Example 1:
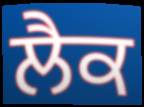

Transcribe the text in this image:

ਲੈਕ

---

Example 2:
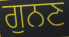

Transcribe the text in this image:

ਗੁਨਣ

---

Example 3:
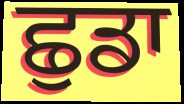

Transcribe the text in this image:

ਛੁਡਾ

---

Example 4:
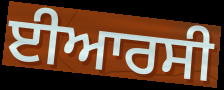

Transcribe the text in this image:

ਈਆਰਸੀ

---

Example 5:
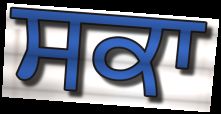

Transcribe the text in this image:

ਸਕਾ